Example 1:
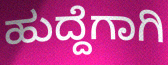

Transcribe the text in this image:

ಹುದ್ದೆಗಾಗಿ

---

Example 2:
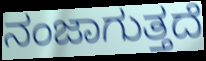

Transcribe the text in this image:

ನಂಜಾಗುತ್ತದೆ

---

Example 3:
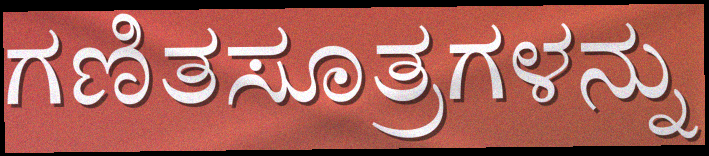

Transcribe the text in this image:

ಗಣಿತಸೂತ್ರಗಳನ್ನು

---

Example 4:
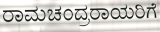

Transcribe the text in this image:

ರಾಮಚಂದ್ರರಾಯರಿಗೆ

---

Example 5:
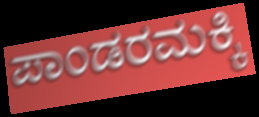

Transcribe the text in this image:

ಪಾಂಡರಮಕ್ಕಿ